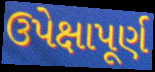
ઉપેક્ષાપૂર્ણ